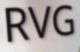
RVG